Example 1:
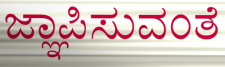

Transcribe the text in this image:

ಜ್ಞಾಪಿಸುವಂತೆ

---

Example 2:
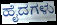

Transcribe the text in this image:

ಹೈದಗಳು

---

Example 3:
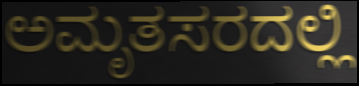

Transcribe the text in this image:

ಅಮೃತಸರದಲ್ಲಿ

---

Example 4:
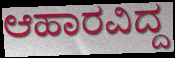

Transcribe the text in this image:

ಆಹಾರವಿದ್ದ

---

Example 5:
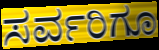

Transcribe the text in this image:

ಸರ್ವರಿಗೂ